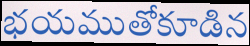
భయముతోకూడిన